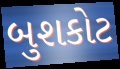
બુશકોટ